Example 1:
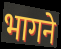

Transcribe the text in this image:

भागने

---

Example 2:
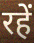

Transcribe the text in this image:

रहें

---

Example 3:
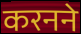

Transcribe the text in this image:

करनने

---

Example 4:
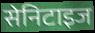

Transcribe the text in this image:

सेनिटाइज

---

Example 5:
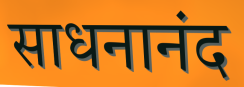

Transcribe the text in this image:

साधनानंद